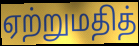
ஏற்றுமதித்